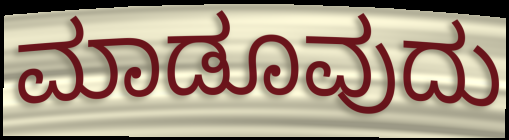
ಮಾಡೂವುದು